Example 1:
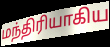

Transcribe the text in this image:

மந்திரியாகிய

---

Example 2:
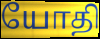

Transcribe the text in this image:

யோதி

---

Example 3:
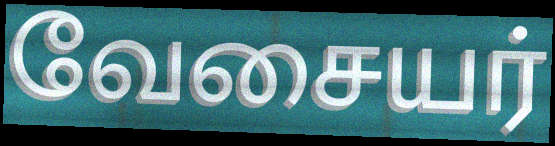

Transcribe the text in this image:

வேசையர்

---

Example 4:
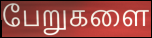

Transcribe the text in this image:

பேறுகளை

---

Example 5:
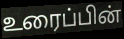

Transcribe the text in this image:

உரைப்பின்